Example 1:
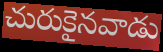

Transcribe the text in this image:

చురుకైనవాడు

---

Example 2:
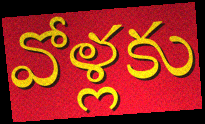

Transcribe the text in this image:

వోళ్లకు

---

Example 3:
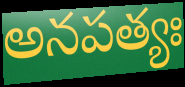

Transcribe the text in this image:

అనపత్యః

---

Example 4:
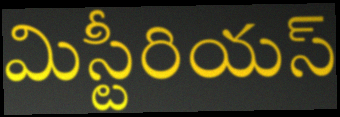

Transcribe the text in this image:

మిస్టీరియస్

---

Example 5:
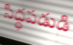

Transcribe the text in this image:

సిద్ధపడుడి